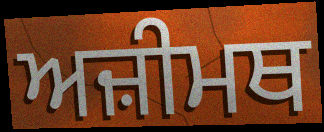
ਅਜ਼ੀਮਥ